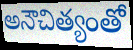
అనౌచిత్యంతో